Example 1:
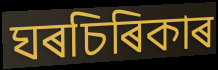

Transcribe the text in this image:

ঘৰচিৰিকাৰ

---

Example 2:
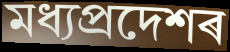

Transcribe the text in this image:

মধ্যপ্ৰদেশৰ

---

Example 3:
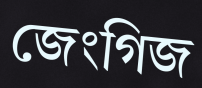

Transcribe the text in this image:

জেংগিজ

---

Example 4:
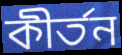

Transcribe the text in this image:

কীৰ্তন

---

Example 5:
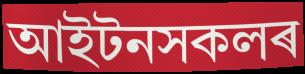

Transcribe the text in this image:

আইটনসকলৰ